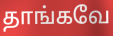
தாங்கவே